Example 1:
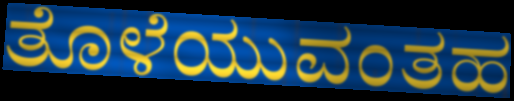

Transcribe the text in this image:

ತೊಳೆಯುವಂತಹ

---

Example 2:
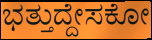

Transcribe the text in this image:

ಭತ್ತುದ್ದೇಸಕೋ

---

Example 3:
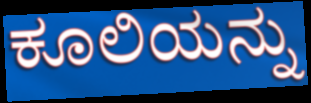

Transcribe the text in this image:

ಕೂಲಿಯನ್ನು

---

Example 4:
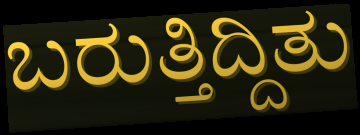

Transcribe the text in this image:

ಬರುತ್ತಿದ್ದಿತು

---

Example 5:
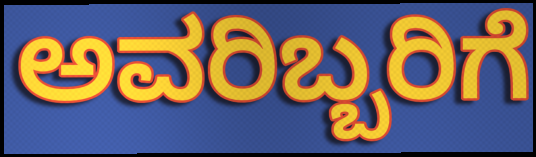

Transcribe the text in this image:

ಅವರಿಬ್ಬರಿಗೆ